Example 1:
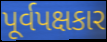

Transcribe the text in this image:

પૂર્વપક્ષકાર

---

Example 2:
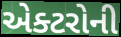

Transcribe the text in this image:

એક્ટરોની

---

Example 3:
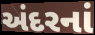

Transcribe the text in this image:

અંદરનાં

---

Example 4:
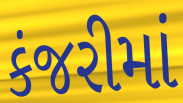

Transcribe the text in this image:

કંજરીમાં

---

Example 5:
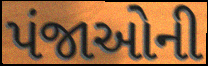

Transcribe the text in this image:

પંજાઓની